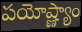
పయోష్ణ్యాం